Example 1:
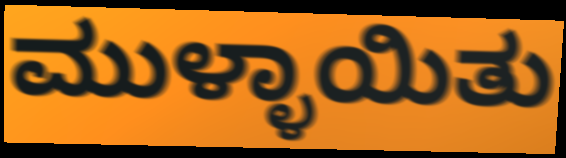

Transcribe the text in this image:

ಮುಳ್ಳಾಯಿತು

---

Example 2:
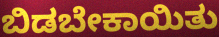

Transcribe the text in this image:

ಬಿಡಬೇಕಾಯಿತು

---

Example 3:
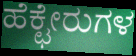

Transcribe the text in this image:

ಹೆಕ್ಟೇರುಗಳ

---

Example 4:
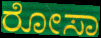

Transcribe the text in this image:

ರೋಸಾ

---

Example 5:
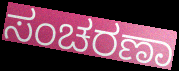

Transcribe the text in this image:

ಸಂಚರಣಾ